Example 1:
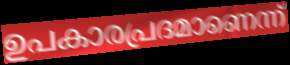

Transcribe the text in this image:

ഉപകാരപ്രദമാണെന്ന്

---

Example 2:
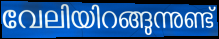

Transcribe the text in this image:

വേലിയിറങ്ങുന്നുണ്ട്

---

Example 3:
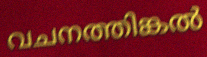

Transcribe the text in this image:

വചനത്തിങ്കൽ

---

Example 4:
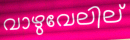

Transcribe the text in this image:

വാഴുവേലില്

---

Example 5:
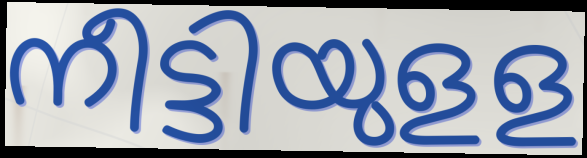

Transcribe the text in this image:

നീട്ടിയുളള